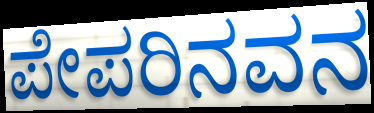
ಪೇಪರಿನವನ